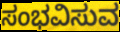
ಸಂಭವಿಸುವ